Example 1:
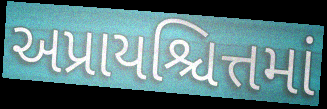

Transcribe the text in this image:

અપ્રાયશ્ચિત્તમાં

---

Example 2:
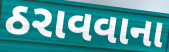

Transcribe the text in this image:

ઠરાવવાના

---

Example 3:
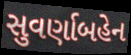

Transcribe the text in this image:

સુવર્ણાબહેન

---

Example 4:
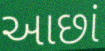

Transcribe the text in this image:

આછાં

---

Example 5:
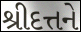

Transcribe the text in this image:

શ્રીદત્તને